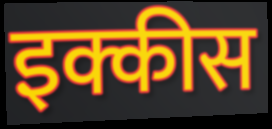
इक्‍कीस